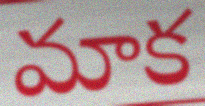
మాక